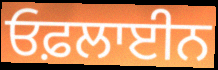
ਓਫ਼ਲਾਈਨ